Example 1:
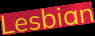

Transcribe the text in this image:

Lesbian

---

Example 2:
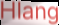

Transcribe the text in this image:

Hlang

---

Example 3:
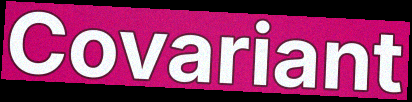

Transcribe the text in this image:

Covariant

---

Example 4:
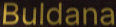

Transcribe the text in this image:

Buldana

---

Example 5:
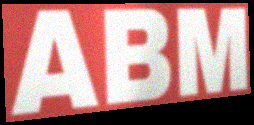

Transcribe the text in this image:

ABM